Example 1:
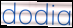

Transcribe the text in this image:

dodia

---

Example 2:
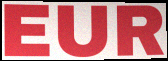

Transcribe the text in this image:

EUR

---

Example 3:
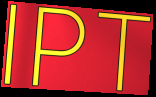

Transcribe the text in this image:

IPT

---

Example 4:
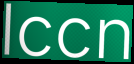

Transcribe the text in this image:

lccn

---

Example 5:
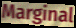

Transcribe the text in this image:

Marginal